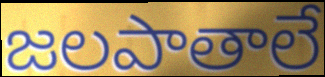
జలపాతాలే